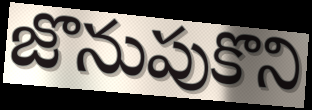
జొనుపుకొని